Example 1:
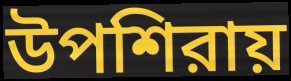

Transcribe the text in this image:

উপশিরায়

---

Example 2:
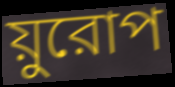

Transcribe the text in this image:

য়ুরোপ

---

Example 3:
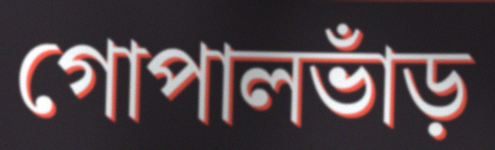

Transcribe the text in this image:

গোপালভাঁড়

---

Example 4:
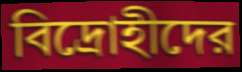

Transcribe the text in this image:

বিদ্রোহীদের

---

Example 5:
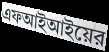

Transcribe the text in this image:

এফআইআইয়ের